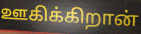
ஊகிக்கிறான்